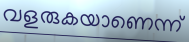
വളരുകയാണെന്ന്